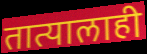
तात्यालाही